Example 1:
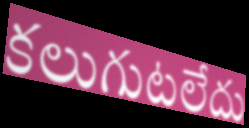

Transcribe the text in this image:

కలుగుటలేదు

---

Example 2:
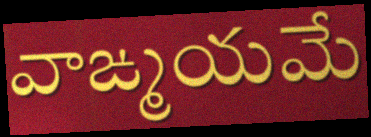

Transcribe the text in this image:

వాఙ్మయమే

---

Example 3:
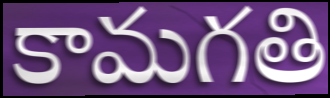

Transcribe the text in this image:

కామగతి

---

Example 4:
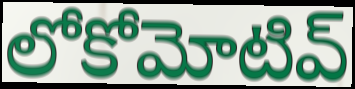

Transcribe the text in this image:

లోకోమోటివ్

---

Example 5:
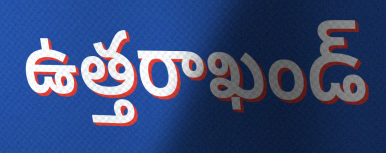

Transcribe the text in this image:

ఉత్తరాఖండ్